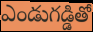
ఎండుగడ్డితో